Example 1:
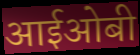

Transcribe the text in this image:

आईओबी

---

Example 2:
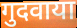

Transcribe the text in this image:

गुदवाया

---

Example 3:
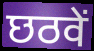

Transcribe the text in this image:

छठवें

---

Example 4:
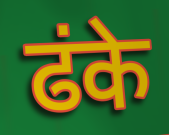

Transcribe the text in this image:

ढंके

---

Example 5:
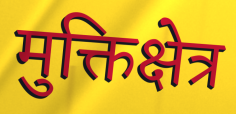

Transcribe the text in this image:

मुक्तिक्षेत्र